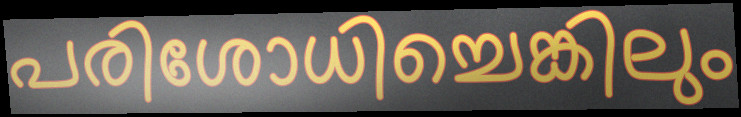
പരിശോധിച്ചെങ്കിലും